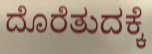
ದೊರೆತುದಕ್ಕೆ